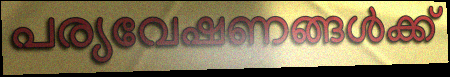
പര്യവേഷണങ്ങൾക്ക്